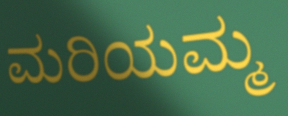
ಮರಿಯಮ್ಮ